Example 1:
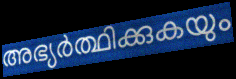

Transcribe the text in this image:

അഭ്യർത്ഥിക്കുകയും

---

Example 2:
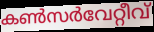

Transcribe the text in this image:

കൺസർവേറ്റീവ്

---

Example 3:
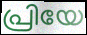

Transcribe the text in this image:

പ്രിയേ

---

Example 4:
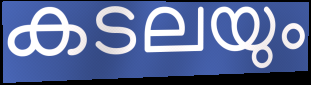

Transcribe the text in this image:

കടലയും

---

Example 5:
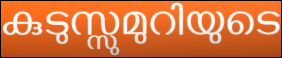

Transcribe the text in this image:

കുടുസ്സുമുറിയുടെ